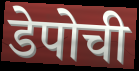
डेपोची